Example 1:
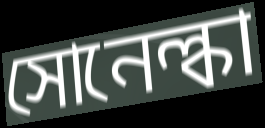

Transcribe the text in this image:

সোনেল্কা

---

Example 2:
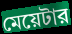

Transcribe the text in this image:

মেয়েটার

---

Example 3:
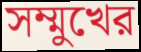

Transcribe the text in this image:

সম্মুখের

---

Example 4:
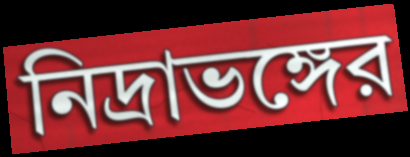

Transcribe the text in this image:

নিদ্রাভঙ্গের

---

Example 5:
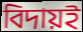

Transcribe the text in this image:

বিদায়ই